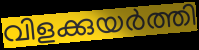
വിളക്കുയർത്തി